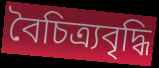
বৈচিত্র্যবৃদ্ধি